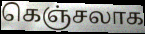
கெஞ்சலாக